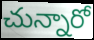
చున్నారో